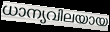
ധാന്യവിലയായ